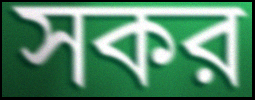
সকর